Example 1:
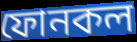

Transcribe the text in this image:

ফোনকল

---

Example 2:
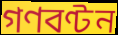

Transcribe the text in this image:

গণবণ্টন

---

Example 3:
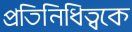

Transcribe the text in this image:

প্রতিনিধিত্বকে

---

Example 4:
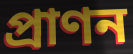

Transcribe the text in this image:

প্রাণন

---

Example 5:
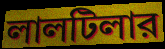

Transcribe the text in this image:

লালটিলার